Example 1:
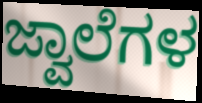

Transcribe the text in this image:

ಜ್ವಾಲೆಗಳ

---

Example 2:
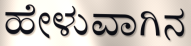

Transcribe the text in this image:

ಹೇಳುವಾಗಿನ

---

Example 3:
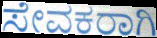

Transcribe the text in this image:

ಸೇವಕರಾಗಿ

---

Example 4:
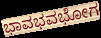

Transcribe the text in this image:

ಭಾವಭವಭೋಗ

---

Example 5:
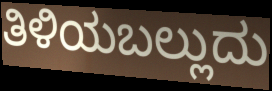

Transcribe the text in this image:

ತಿಳಿಯಬಲ್ಲುದು